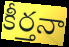
కీర్తనా